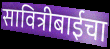
सावित्रीबाईचा